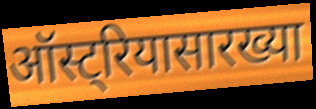
ऑस्ट्रियासारख्या